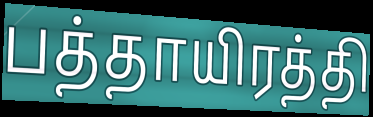
பத்தாயிரத்தி